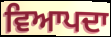
ਵਿਆਪਦਾ